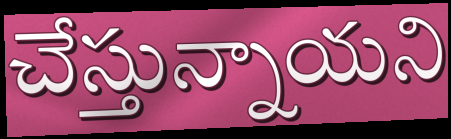
చేస్తున్నాయని